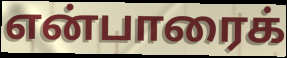
என்பாரைக்